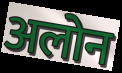
अलोन